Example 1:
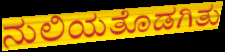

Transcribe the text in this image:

ನುಲಿಯತೊಡಗಿತು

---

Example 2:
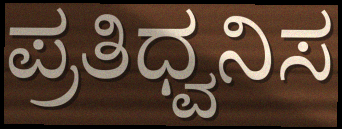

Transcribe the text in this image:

ಪ್ರತಿಧ್ವನಿಸ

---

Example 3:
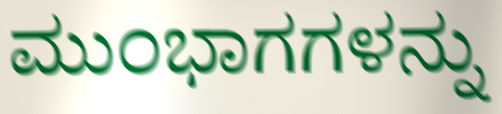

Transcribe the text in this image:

ಮುಂಭಾಗಗಳನ್ನು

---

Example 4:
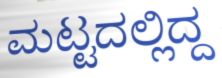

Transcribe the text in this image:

ಮಟ್ಟದಲ್ಲಿದ್ದ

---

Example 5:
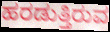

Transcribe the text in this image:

ಹರಡುತ್ತಿರುವ